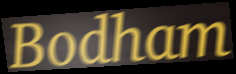
Bodham